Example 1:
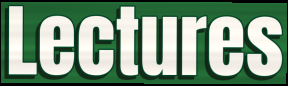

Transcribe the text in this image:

Lectures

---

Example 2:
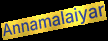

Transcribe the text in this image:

Annamalaiyar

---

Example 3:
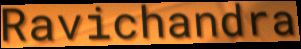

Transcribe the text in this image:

Ravichandra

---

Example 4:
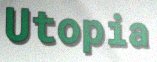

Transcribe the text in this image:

Utopia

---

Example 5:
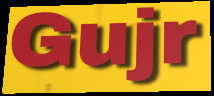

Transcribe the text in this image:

Gujr